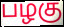
பழகு